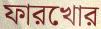
ফারখোর